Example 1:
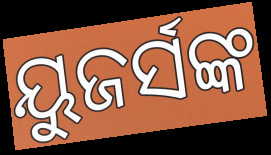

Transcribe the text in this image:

ୟୁଜର୍ସଙ୍କ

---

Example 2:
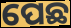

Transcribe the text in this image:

ପେଛ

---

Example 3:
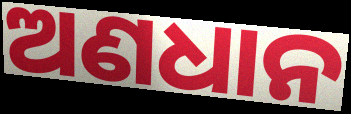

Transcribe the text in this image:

ଅଣଧାନ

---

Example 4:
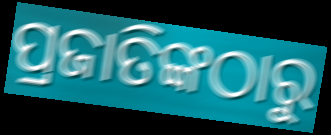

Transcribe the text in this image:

ପ୍ରଜାତିଙ୍କଠାରୁ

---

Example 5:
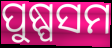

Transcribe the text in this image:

ପୁଷ୍ପସମ